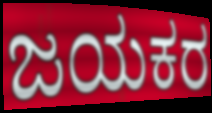
ಜಯಕರ